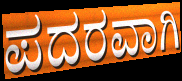
ಪದರವಾಗಿ